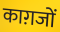
काग़जों